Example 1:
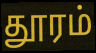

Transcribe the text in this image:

தூரம்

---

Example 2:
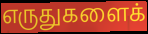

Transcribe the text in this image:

எருதுகளைக்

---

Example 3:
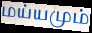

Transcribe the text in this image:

மய்யமும்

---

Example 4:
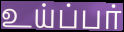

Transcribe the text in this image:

உய்ப்பர்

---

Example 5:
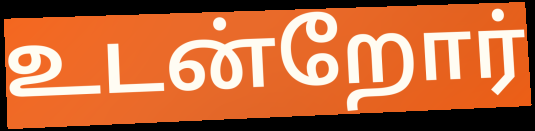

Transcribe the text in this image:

உடன்றோர்